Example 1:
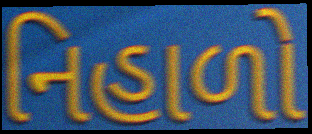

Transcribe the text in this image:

નિહાળો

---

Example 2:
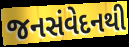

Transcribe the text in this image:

જનસંવેદનથી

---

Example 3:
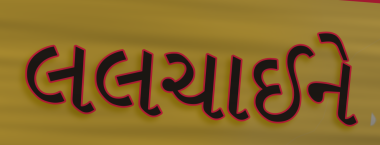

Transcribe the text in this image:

લલચાઈને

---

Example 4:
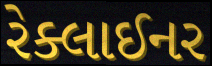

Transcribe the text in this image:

રેક્લાઈનર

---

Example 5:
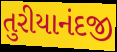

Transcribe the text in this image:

તુરીયાનંદજી